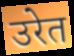
उरेत